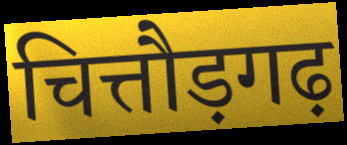
चित्तौड़गढ़